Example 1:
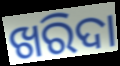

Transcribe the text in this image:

ଖରିଦା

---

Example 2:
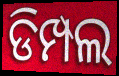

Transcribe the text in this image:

ଡିମ୍ପଲ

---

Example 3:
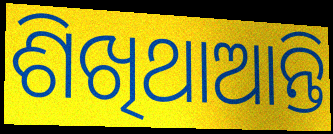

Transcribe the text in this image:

ଶିଖିଥାଆନ୍ତି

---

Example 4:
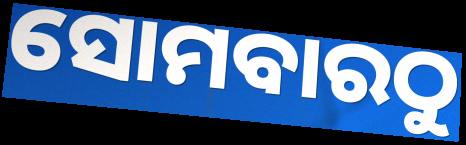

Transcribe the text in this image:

ସୋମବାରଠୁ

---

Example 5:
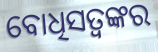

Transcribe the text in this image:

ବୋଧିସତ୍ୱଙ୍କର